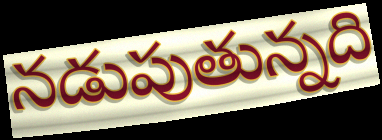
నడుపుతున్నది